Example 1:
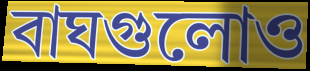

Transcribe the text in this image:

বাঘগুলোও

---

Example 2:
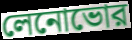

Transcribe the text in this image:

লেনোভোর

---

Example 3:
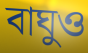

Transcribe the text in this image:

বাঘুও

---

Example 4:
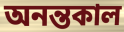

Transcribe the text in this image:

অনন্তকাল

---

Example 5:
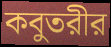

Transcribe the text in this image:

কবুতরীর